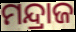
ମନ୍ଦ୍ରାଜ